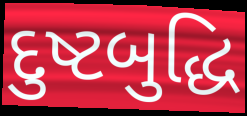
દુષ્ટબુદ્ધિ